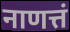
नाणत्तं